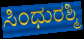
ಸಿಂಧುರಶ್ಮಿ